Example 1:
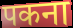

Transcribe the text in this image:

पकना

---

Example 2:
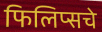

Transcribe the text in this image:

फिलिप्सचे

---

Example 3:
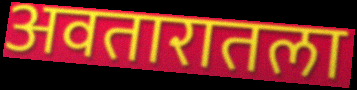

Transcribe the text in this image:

अवतारातला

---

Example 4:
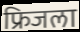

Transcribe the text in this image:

फ्रिजला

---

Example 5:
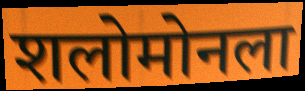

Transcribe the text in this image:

शलोमोनला